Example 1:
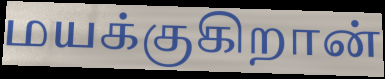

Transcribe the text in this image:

மயக்குகிறான்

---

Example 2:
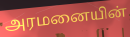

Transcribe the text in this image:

அரமனையின்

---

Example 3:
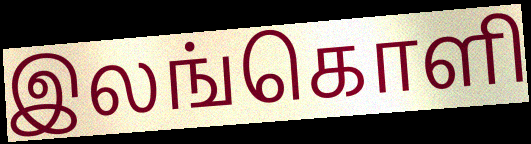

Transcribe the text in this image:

இலங்கொளி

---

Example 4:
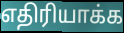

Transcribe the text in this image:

எதிரியாக்க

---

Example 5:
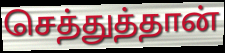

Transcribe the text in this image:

செத்துத்தான்